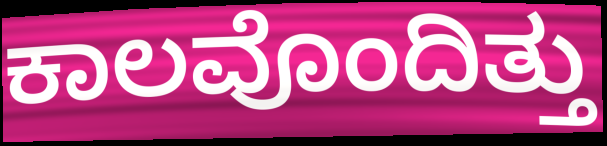
ಕಾಲವೊಂದಿತ್ತು